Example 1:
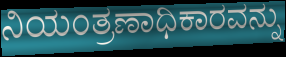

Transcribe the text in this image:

ನಿಯಂತ್ರಣಾಧಿಕಾರವನ್ನು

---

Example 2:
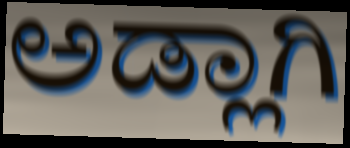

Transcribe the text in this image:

ಅಡ್ಲಾಗಿ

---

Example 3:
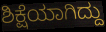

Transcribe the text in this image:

ಶಿಕ್ಷೆಯಾಗಿದ್ದು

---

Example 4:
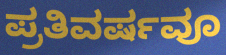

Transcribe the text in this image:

ಪ್ರತಿವರ್ಷವೂ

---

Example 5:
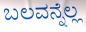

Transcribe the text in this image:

ಬಲವನ್ನೆಲ್ಲ